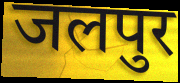
जलपुर